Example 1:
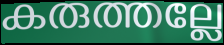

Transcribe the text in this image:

കരുത്തല്ലേ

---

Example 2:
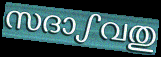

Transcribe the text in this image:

സദാഽവതു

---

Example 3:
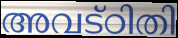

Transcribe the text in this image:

അവട്ഠിതി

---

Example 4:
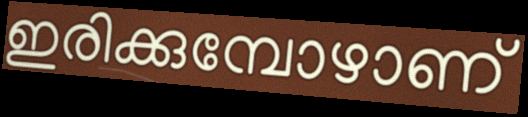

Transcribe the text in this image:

ഇരിക്കുമ്പോഴാണ്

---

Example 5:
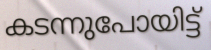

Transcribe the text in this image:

കടന്നുപോയിട്ട്